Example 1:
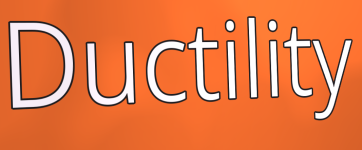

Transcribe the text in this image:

Ductility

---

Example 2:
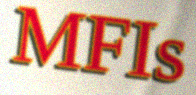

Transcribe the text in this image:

MFIs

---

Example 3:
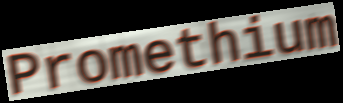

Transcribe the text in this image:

Promethium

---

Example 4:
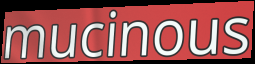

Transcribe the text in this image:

mucinous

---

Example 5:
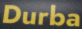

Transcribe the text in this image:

Durba